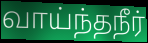
வாய்ந்தநீர்